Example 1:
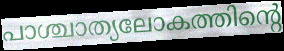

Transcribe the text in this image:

പാശ്ചാത്യലോകത്തിന്റെ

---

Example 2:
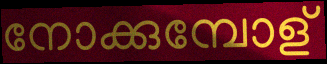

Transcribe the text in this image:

നോക്കുമ്പോള്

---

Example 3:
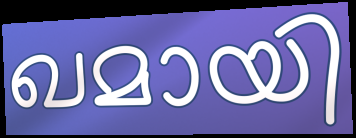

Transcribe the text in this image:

ഖമായി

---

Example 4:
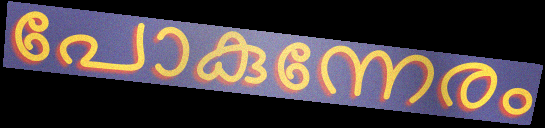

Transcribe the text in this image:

പോകുന്നേരം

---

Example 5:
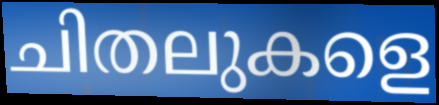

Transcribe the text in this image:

ചിതലുകളെ